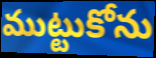
ముట్టుకోను